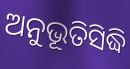
ଅନୁଭୂତିସିଦ୍ଧି